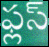
ఫ్లస్